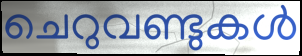
ചെറുവണ്ടുകൾ